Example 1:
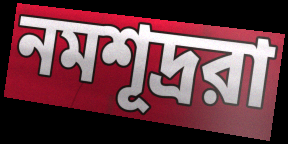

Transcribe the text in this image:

নমশূদ্ররা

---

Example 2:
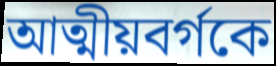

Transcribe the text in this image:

আত্মীয়বর্গকে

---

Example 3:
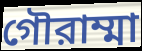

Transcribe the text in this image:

গৌরাম্মা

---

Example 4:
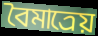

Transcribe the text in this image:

বৈমাত্রেয়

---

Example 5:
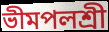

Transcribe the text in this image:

ভীমপলশ্রী